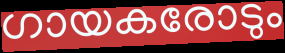
ഗായകരോടും